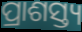
ପ୍ରାଶସ୍ତ୍ୟ